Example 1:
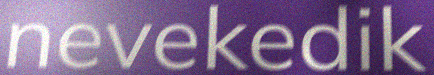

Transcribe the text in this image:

nevekedik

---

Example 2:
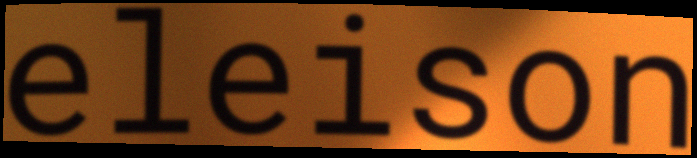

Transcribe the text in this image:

eleison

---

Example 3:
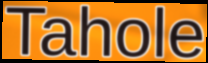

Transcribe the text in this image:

Tahole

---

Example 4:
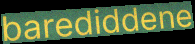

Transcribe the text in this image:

barediddene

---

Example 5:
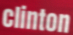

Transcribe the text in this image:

clinton